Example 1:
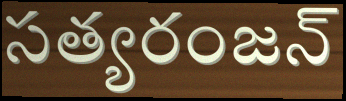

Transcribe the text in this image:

సత్యరంజన్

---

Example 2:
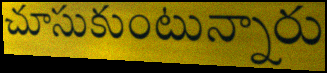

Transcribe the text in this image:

చూసుకుంటున్నారు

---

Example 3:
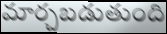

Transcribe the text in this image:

మార్చబడుతుంది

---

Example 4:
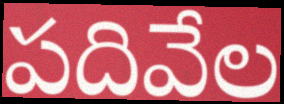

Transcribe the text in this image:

పదివేల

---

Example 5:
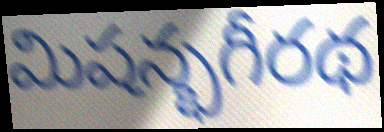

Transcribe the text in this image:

మిషన్భగీరథ